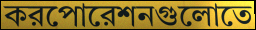
করপোরেশনগুলোতে